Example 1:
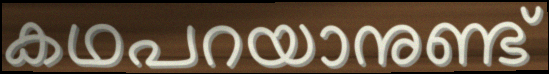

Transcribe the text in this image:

കഥപറയാനുണ്ട്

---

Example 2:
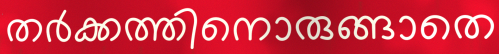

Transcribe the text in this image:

തർക്കത്തിനൊരുങ്ങാതെ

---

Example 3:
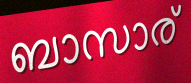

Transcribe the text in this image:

ബാസാര്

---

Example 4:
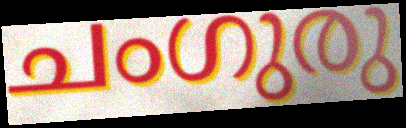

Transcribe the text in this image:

ചംഗുരു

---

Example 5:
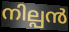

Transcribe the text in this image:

നില്പൻ